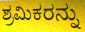
ಶ್ರಮಿಕರನ್ನು